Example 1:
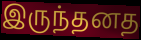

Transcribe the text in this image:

இருந்தனத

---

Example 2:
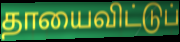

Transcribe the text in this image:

தாயைவிட்டுப்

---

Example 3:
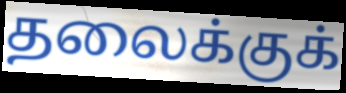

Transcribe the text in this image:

தலைக்குக்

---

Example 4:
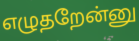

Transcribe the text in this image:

எழுதறேன்னு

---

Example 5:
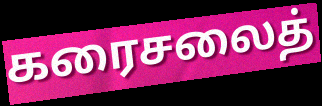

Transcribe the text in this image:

கரைசலைத்